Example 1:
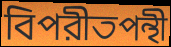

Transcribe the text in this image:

বিপরীতপন্থী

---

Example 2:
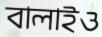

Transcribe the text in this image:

বালাইও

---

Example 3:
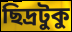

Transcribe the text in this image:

ছিদ্রটুকু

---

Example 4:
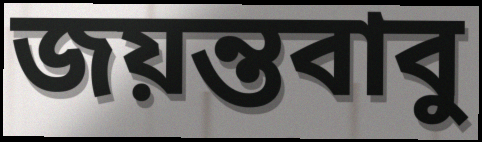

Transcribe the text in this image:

জয়ন্তবাবু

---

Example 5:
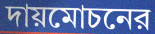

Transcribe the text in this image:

দায়মোচনের